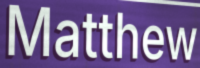
Matthew